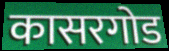
कासरगोड